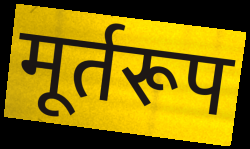
मूर्तरूप